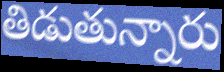
తిడుతున్నారు